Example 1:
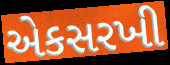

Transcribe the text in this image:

એકસરખી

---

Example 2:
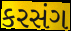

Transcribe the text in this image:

કરસંગ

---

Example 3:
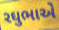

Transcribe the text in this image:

રઘુભાએ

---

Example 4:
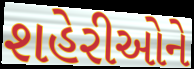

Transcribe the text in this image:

શહેરીઓને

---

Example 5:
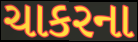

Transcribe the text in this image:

ચાકરના